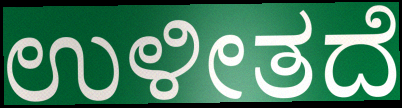
ಉಳೀತದೆ